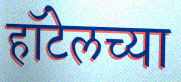
हॉटेलच्या